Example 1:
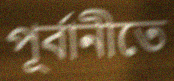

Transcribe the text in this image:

পূর্বানীতে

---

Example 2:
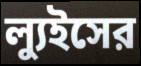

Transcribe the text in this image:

ল্যুইসের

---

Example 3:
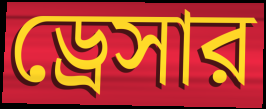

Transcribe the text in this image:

ড্রেসার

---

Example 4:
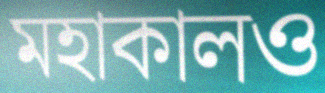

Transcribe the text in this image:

মহাকালও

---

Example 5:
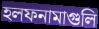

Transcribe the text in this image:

হলফনামাগুলি